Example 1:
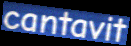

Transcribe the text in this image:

cantavit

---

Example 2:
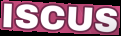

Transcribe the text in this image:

ISCUS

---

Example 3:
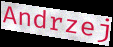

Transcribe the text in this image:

Andrzej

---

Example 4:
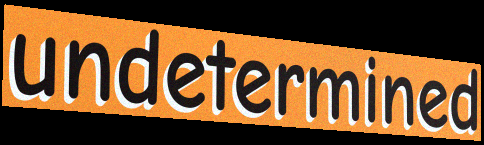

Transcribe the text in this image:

undetermined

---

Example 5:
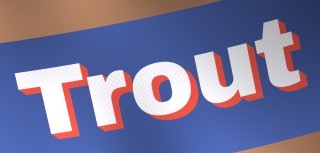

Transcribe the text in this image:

Trout